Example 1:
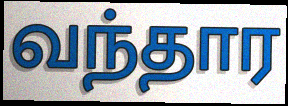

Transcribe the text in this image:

வந்தார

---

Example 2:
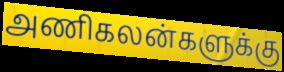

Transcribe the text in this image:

அணிகலன்களுக்கு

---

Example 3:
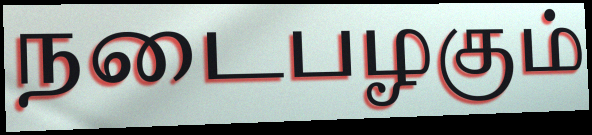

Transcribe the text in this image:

நடைபழகும்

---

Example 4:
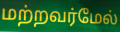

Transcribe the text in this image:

மற்றவர்மேல்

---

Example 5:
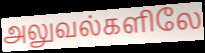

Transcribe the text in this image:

அலுவல்களிலே